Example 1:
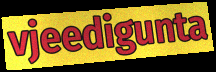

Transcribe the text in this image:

vjeedigunta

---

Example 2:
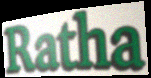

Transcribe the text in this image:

Ratha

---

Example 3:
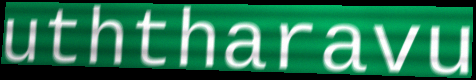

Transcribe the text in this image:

uththaravu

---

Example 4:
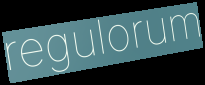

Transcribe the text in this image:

regulorum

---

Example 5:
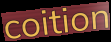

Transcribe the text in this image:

coition